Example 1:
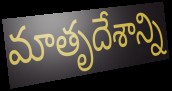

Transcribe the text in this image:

మాతృదేశాన్ని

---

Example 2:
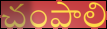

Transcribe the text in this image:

చంపాలి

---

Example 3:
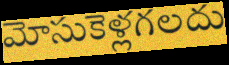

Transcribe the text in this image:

మోసుకెళ్లగలదు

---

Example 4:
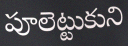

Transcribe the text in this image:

పూలెట్టుకుని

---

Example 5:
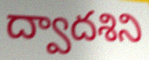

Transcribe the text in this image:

ద్వాదశిని